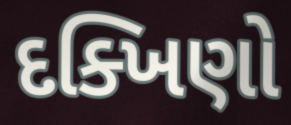
દક્ખિણો